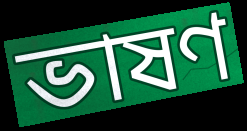
ভাষণ